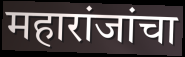
महारांजांचा